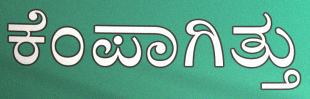
ಕೆಂಪಾಗಿತ್ತು